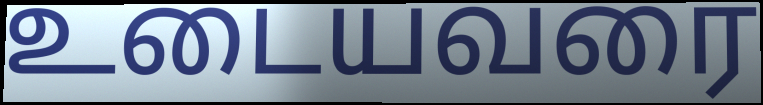
உடையவரை